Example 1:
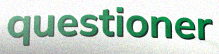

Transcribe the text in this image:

questioner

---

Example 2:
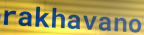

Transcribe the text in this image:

rakhavano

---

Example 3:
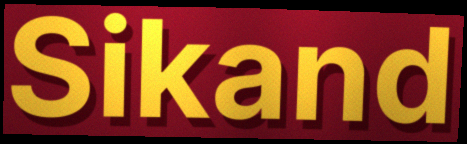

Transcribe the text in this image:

Sikand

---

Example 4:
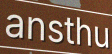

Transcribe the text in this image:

ansthu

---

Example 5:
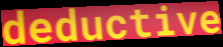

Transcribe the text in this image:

deductive